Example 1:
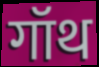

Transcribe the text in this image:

गॉथ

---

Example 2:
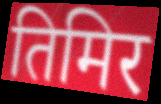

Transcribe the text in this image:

तिमिर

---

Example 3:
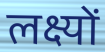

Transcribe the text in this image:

लक्ष्‍यों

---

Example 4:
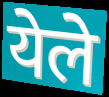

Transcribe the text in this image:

येले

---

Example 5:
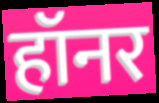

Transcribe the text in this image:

हॉनर